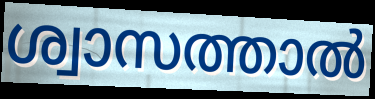
ശ്വാസത്താൽ